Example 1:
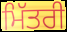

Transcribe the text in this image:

ਮਿੱਤਰੀ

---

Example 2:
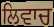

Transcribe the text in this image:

ਲਿਵਾਚ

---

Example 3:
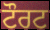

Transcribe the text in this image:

ਟੌਰਟ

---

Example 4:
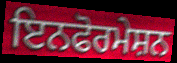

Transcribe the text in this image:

ਇਨਫੋਰਮੇਸ਼ਨ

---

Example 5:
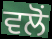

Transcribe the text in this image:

ਵਲੋੰ